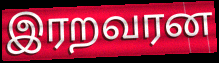
இரறவரன